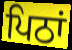
ਪਿਠਾਂ